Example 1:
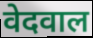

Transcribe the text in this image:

वेदवाल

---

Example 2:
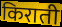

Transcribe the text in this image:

किराती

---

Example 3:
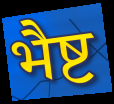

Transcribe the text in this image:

भैष्ट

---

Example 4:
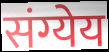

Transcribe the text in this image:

संग्येय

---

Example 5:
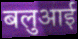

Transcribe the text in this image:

बलुआई